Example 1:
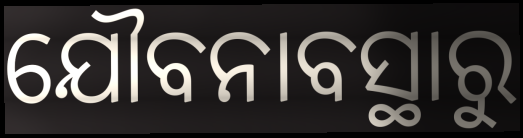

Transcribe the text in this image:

ଯୌବନାବସ୍ଥାରୁ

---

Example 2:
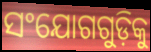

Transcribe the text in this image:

ସଂଯୋଗଗୁଡ଼ିକୁ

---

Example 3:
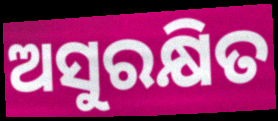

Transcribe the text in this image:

ଅସୁରକ୍ଷିତ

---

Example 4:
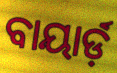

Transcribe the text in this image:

ବାୟାର୍ଡ଼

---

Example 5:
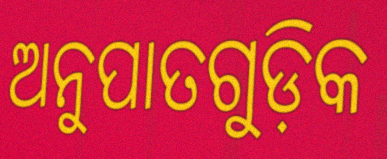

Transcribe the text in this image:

ଅନୁପାତଗୁଡ଼ିକ